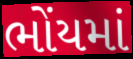
ભોંયમાં